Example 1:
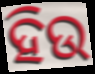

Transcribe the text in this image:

ହିଉ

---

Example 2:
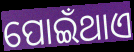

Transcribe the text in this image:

ପୋଇଁଥାଏ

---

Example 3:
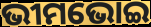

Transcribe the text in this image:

ଭୀମଭୋଇ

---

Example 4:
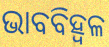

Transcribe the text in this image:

ଭାବବିହ୍ବଳ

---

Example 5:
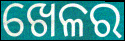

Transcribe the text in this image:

ଖେଳର